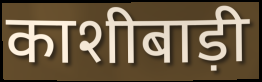
काशीबाड़ी